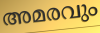
അമരവും